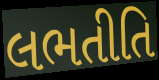
લભતીતિ